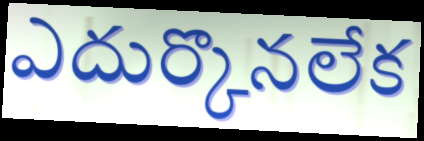
ఎదుర్కొనలేక